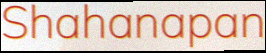
Shahanapan